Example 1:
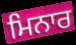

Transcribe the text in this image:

ਮਿਨਾਰ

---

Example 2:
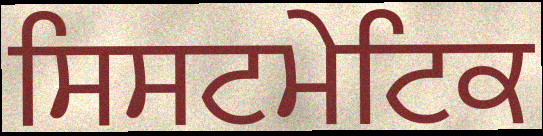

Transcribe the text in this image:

ਸਿਸਟਮੇਟਿਕ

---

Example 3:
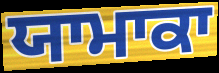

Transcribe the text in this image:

ਯਾਮਾਕਾ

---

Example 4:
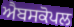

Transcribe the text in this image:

ਐਬਸਕੋਪਲ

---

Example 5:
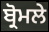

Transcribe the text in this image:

ਬ੍ਰੋਮਲੇ